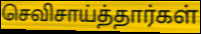
செவிசாய்த்தார்கள்